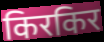
किरकिर